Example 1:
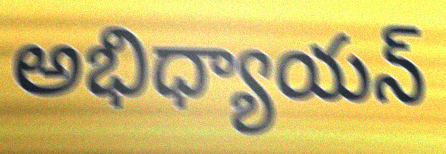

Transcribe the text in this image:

అభిధ్యాయన్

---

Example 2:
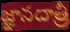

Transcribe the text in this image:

జ్ఞానదాత్రీ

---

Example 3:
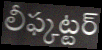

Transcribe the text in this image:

లీఫ్కట్టర్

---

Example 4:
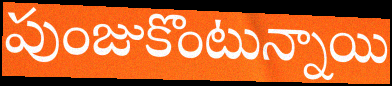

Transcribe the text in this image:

పుంజుకొంటున్నాయి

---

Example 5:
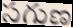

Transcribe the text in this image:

సగుణ